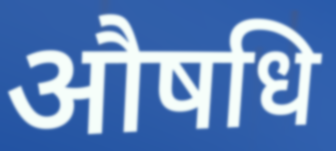
औषधि